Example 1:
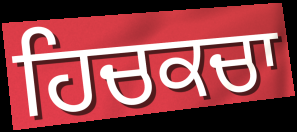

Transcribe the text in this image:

ਹਿਚਕਚਾ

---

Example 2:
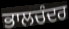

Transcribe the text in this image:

ਭਾਲਚੰਦਰ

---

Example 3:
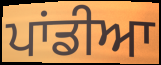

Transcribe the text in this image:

ਪਾਂਡੀਆ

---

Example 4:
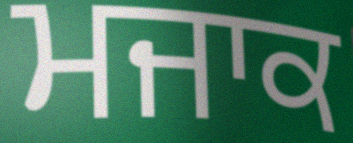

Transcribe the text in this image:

ਮਜਾਕ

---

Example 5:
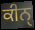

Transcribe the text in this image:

ਕੀਨੑ